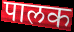
पालक